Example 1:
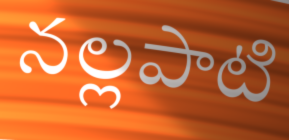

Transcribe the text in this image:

నల్లపాటి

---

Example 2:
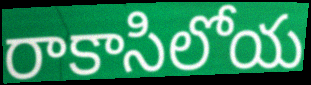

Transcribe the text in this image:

రాకాసిలోయ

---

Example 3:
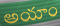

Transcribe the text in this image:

అయాం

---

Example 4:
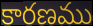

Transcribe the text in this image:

కారణము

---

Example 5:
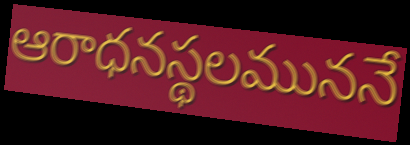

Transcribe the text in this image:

ఆరాధనస్థలముననే